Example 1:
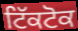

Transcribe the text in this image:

ਟਿੱਕਟੋਕ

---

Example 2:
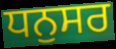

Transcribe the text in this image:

ਧਨੁਸਰ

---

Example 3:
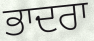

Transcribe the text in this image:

ਭਾਦਰਾ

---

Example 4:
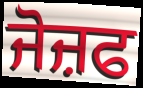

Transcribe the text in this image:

ਜੋਜ਼ਫ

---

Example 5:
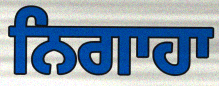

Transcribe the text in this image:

ਨਿਗਾਹਾ